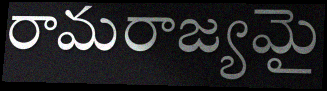
రామరాజ్యమై